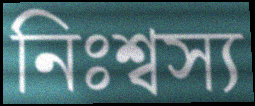
নিঃশ্বস্য